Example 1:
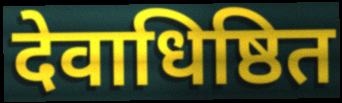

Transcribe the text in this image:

देवाधिष्ठित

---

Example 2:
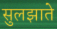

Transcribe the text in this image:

सुलझाते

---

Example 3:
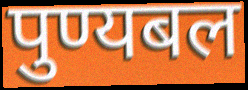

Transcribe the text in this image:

पुण्यबल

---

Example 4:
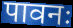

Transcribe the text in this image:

पावनः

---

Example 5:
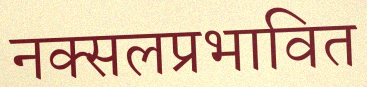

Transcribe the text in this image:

नक्सलप्रभावित